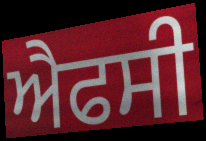
ਐਫਸੀ